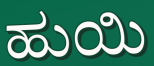
ಹುಯಿ